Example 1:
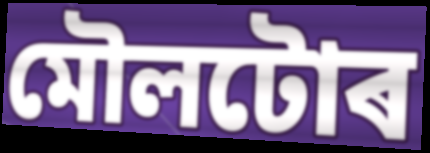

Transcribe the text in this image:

মৌলটোৰ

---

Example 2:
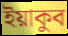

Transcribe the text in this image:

ইয়াকুব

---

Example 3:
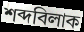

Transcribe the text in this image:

শব্দবিলাক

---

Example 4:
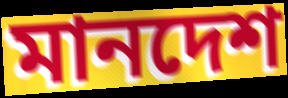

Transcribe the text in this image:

মানদেশ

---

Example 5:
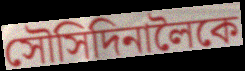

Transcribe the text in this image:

সৌসিদিনালৈকে